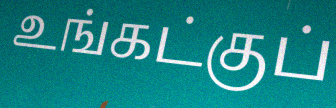
உங்கட்குப்